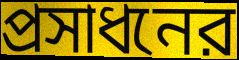
প্রসাধনের